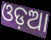
ଓଡ଼ଆ